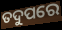
ତଦୁପରେ